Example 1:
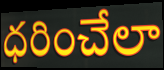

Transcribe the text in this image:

ధరించేలా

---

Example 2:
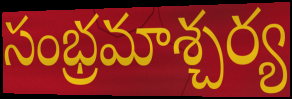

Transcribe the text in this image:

సంభ్రమాశ్చర్య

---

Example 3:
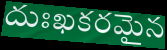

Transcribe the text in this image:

దుఃఖకరమైన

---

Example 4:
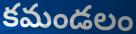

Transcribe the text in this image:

కమండలం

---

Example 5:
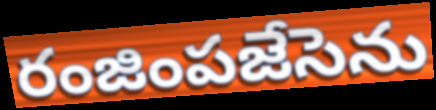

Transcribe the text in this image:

రంజింపజేసెను